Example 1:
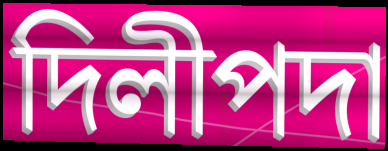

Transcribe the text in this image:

দিলীপদা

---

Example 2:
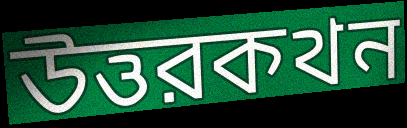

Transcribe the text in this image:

উত্তরকথন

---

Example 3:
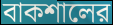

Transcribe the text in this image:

বাকশালের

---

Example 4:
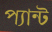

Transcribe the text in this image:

প্যান্ট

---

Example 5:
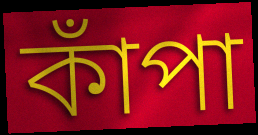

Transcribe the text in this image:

কাঁপা